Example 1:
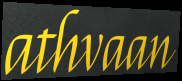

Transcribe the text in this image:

athvaan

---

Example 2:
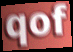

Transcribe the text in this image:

qof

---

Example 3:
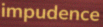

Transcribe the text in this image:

impudence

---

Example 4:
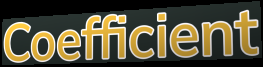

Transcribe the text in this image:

Coefficient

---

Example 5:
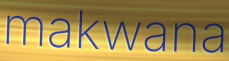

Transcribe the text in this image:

makwana